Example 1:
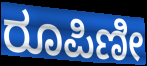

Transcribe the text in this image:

ರೂಪಿಣೀ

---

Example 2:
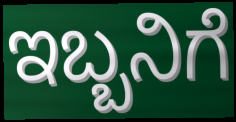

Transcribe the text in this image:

ಇಬ್ಬನಿಗೆ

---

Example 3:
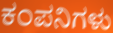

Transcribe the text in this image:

ಕಂಪನಿಗಳು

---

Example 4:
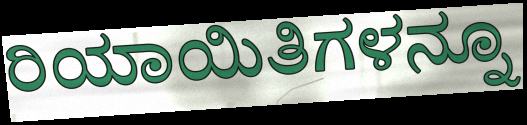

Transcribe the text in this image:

ರಿಯಾಯಿತಿಗಳನ್ನೂ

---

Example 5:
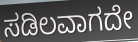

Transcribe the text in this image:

ಸಡಿಲವಾಗದೇ